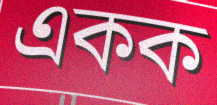
একক